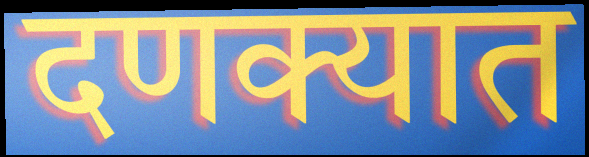
दणक्यात